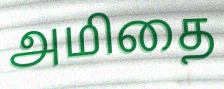
அமிதை